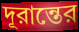
দূরান্তের